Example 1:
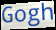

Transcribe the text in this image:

Gogh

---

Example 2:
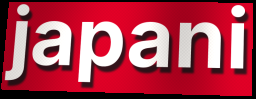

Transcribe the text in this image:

japani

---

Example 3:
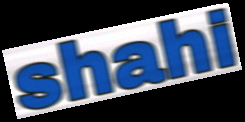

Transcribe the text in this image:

shahi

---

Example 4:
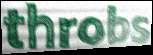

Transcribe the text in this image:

throbs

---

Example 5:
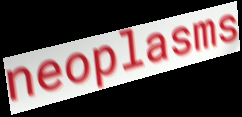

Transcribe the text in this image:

neoplasms